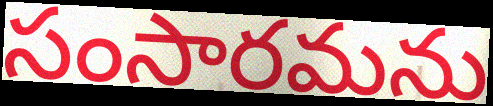
సంసారమను